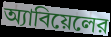
অ্যাবিয়েলের